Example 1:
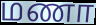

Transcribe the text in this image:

மணா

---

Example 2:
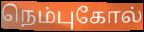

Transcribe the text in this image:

நெம்புகோல்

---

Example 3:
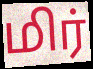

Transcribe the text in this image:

மிர்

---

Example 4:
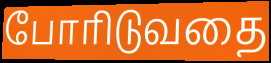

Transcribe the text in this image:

போரிடுவதை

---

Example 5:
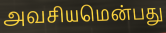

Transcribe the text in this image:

அவசியமென்பது